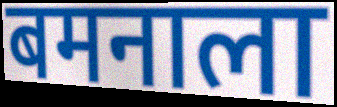
बमनाला